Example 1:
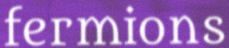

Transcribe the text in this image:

fermions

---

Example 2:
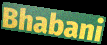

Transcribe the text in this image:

Bhabani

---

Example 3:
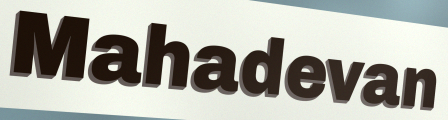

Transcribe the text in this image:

Mahadevan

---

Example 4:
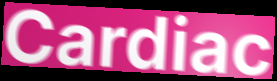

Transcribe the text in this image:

Cardiac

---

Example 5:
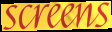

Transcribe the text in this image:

screens